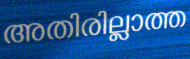
അതിരില്ലാത്ത